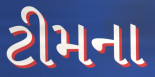
ટીમના